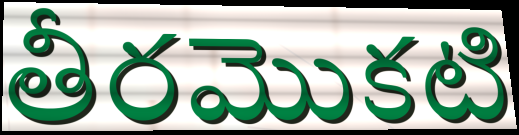
తీరమొకటి